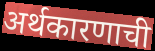
अर्थकारणाची